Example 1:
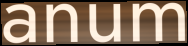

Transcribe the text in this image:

anum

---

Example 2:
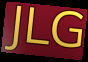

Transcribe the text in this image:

JLG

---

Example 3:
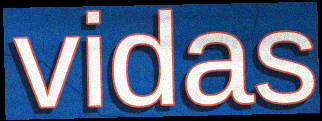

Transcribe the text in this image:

vidas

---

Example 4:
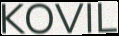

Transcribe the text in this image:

KOVIL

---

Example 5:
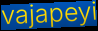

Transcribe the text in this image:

vajapeyi